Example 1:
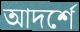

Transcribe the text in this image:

আদর্শে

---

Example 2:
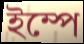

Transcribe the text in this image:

ইম্পে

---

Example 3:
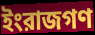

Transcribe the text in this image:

ইংরাজগণ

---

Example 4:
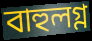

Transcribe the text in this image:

বাহুলগ্ন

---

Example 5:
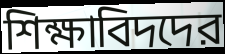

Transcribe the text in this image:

শিক্ষাবিদদের